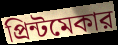
প্রিন্টমেকার